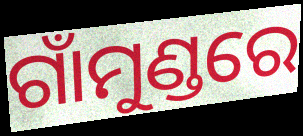
ଗାଁମୁଣ୍ଡରେ